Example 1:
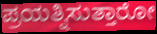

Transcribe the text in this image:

ಪ್ರಯತ್ನಿಸುತ್ತಾರೋ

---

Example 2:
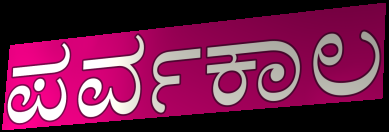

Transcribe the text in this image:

ಪರ್ವಕಾಲ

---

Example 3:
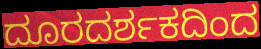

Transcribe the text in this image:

ದೂರದರ್ಶಕದಿಂದ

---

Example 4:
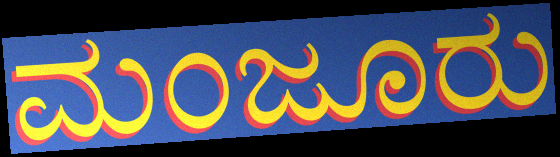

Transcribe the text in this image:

ಮಂಜೂರು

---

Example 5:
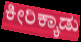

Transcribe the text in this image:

ಕೀರಿಕ್ಕಾಡು